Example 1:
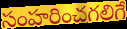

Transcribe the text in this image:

సంహరించగలిగే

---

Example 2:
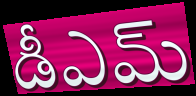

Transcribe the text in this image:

డీఎమ్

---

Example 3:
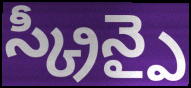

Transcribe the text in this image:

స్క్రీన్పై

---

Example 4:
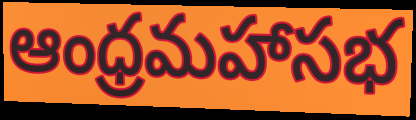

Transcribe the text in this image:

ఆంధ్రమహాసభ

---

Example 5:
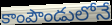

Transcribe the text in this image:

కాంపౌండులోనే